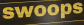
swoops